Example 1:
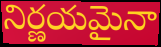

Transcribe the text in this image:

నిర్ణయమైనా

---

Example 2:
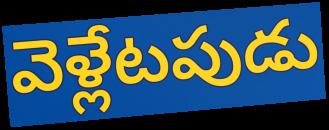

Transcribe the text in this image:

వెళ్లేటపుడు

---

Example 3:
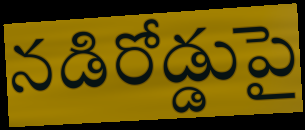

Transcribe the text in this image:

నడిరోడ్డుపై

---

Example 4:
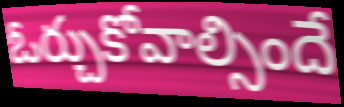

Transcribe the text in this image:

ఓర్చుకోవాల్సిందే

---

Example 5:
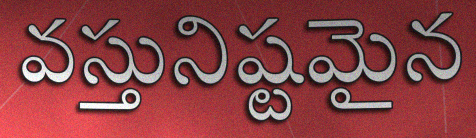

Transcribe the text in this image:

వస్తునిష్టమైన